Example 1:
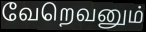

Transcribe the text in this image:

வேறெவனும்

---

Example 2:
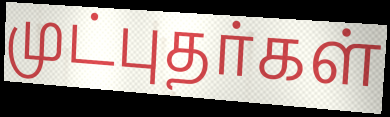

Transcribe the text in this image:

முட்புதர்கள்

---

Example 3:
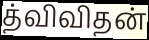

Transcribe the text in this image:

த்விவிதன்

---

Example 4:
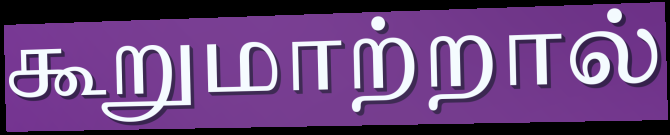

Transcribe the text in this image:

கூறுமாற்றால்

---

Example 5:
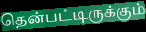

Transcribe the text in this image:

தென்பட்டிருக்கும்